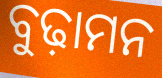
ବୁଢ଼ାମନ